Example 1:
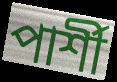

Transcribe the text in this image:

পার্শী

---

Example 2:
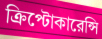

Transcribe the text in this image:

ক্রিপ্টোকারেন্সি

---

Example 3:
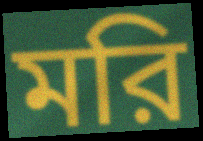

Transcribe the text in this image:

মরি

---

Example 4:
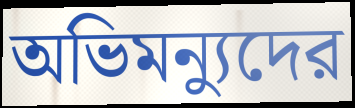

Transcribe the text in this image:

অভিমন্যুদের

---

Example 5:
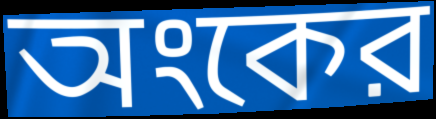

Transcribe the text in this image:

অংকের